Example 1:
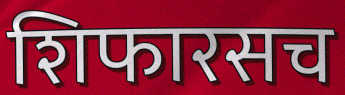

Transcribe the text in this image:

शिफारसच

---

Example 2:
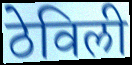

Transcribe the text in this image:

ठेविली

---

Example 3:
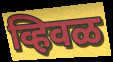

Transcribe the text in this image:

व्हिवळ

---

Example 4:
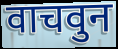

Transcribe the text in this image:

वाचवुन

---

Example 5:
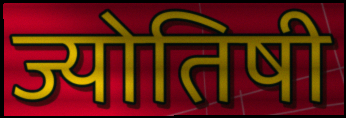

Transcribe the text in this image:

ज्योतिषी